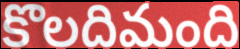
కొలదిమంది